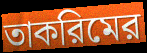
তাকরিমের